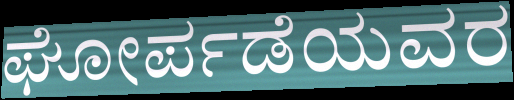
ಘೋರ್ಪಡೆಯವರ